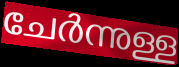
ചേർന്നുള്ള